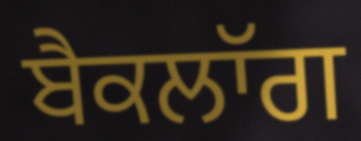
ਬੈਕਲਾੱਗ